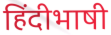
हिंदीभाषी